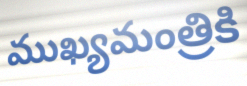
ముఖ్యమంత్రికి